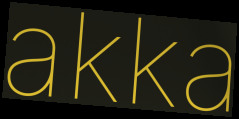
akka